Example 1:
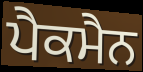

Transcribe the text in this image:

ਪੈਕਮੈਨ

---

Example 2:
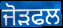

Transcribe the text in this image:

ਜੋੜਫਲ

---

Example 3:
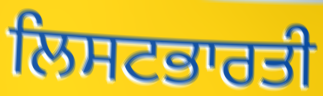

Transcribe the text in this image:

ਲਿਸਟਭਾਰਤੀ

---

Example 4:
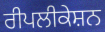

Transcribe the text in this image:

ਰੀਪਲੀਕੇਸ਼ਨ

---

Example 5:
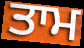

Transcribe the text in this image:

ਤਾਮ